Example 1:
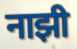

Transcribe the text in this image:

नाझी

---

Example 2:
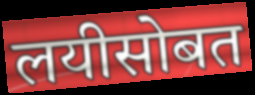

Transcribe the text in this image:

लयीसोबत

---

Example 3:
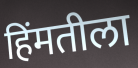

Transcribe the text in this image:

हिंमतीला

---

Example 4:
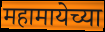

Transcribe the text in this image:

महामायेच्या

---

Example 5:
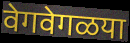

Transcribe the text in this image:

वेगवेगळया